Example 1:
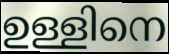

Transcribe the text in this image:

ഉള്ളിനെ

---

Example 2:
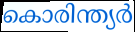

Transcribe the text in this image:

കൊരിന്ത്യർ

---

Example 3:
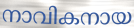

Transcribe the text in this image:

നാവികനായ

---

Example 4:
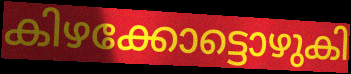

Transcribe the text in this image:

കിഴക്കോട്ടൊഴുകി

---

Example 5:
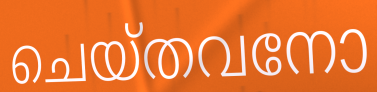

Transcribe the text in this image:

ചെയ്തവനോ